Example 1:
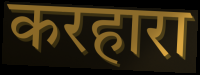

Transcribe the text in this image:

करहारा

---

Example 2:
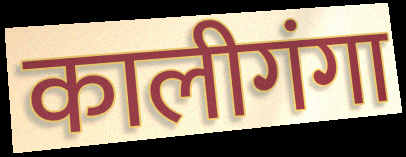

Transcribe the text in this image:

कालीगंगा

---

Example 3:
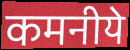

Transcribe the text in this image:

कमनीये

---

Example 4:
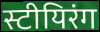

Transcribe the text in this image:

स्टीयिरंग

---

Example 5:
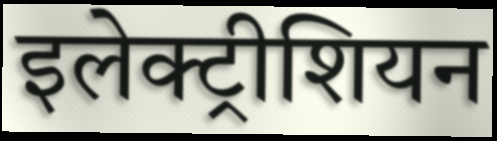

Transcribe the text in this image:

इलेक्‍ट्रीशियन